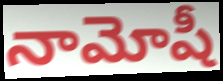
నామోషీ